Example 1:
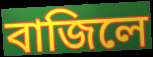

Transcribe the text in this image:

বাজিলে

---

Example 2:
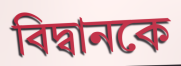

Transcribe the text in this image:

বিদ্বানকে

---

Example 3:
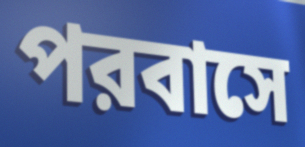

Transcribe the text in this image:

পরবাসে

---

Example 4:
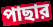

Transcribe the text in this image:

পাছার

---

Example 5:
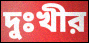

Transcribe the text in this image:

দুঃখীর